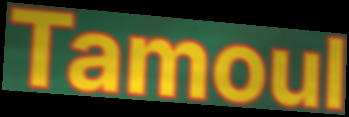
Tamoul